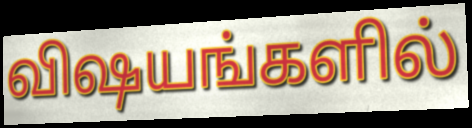
விஷயங்களில்